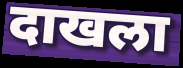
दाखला